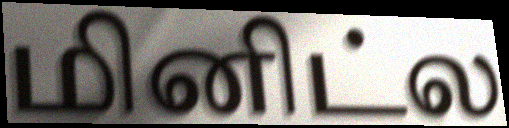
மினிட்ல